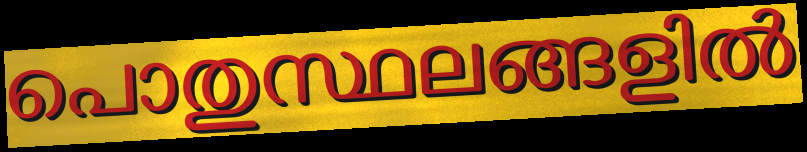
പൊതുസ്ഥലങ്ങളിൽ